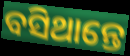
ବସିଥାନ୍ତେ